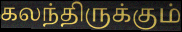
கலந்திருக்கும்